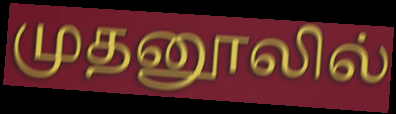
முதனூலில்